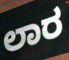
ಲಾರ